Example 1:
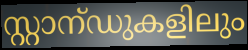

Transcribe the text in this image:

സ്റ്റാന്ഡുകളിലും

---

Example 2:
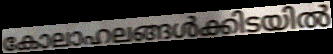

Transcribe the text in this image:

കോലാഹലങ്ങൾക്കിടയിൽ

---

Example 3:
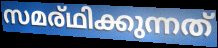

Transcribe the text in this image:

സമര്ഥിക്കുന്നത്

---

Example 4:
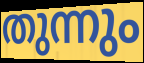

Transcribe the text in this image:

തുന്നും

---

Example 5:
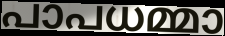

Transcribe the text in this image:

പാപധമ്മാ